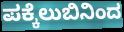
ಪಕ್ಕೆಲುಬಿನಿಂದ